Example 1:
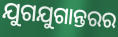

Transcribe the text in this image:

ଯୁଗଯୁଗାନ୍ତରର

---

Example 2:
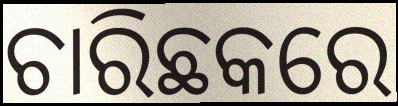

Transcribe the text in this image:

ଚାରିଛକରେ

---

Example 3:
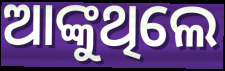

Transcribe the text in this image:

ଆଙ୍କୁଥିଲେ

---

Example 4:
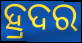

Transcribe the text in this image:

ହ୍ରଦର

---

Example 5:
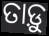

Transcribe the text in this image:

ତାଡ଼ୁ